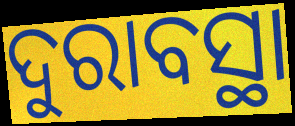
ଦୁରାବସ୍ଥା